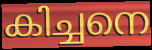
കിച്ചനെ